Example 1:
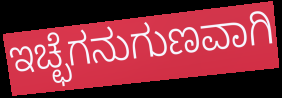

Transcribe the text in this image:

ಇಚ್ಛೆಗನುಗುಣವಾಗಿ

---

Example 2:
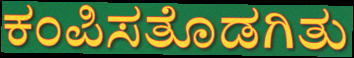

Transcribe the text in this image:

ಕಂಪಿಸತೊಡಗಿತು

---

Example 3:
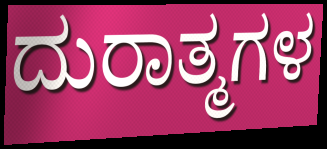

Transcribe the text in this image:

ದುರಾತ್ಮಗಳ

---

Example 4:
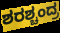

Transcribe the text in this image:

ಶರಶ್ಚಂದ್ರ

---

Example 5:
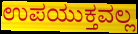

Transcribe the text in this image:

ಉಪಯುಕ್ತವಲ್ಲ